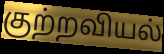
குற்றவியல்